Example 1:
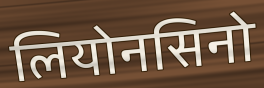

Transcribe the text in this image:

लियोनसिनो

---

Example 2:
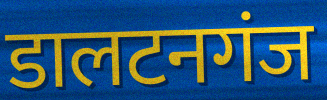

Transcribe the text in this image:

डालटनगंज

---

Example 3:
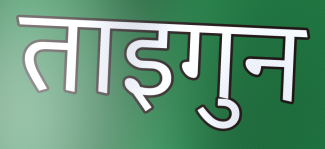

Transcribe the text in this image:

ताइगुन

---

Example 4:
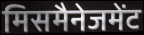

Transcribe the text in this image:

मिसमैनेजमेंट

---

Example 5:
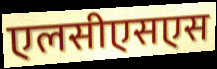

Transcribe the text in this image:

एलसीएसएस